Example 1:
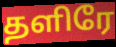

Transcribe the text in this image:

தளிரே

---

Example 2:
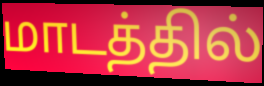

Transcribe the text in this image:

மாடத்தில்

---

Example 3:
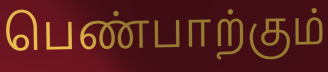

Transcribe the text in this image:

பெண்பாற்கும்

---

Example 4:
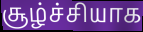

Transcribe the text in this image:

சூழ்ச்சியாக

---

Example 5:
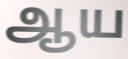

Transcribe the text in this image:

ஆய